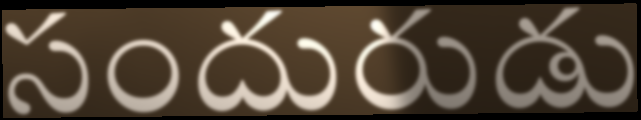
సందురుడు